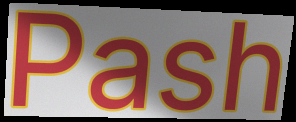
Pash